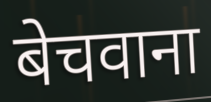
बेचवाना